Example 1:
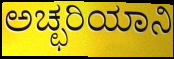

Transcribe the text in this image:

ಅಚ್ಛರಿಯಾನಿ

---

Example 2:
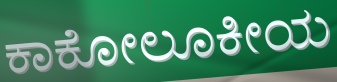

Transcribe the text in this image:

ಕಾಕೋಲೂಕೀಯ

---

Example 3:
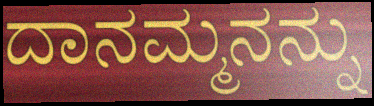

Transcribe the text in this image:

ದಾನಮ್ಮನನ್ನು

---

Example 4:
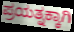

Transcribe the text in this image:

ಪ್ರಯತ್ನಕ್ಕಾಗಿ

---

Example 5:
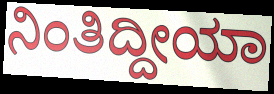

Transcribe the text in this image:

ನಿಂತಿದ್ದೀಯಾ